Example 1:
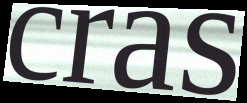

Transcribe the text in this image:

cras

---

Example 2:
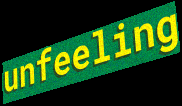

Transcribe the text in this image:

unfeeling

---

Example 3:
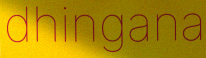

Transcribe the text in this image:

dhingana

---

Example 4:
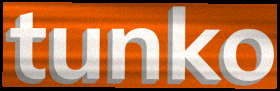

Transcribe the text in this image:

tunko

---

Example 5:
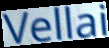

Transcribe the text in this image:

Vellai